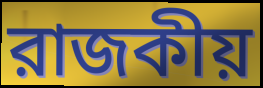
রাজকীয়